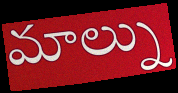
మాల్ను